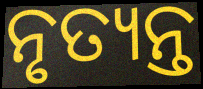
ନୃତ୍ୟନ୍ତ